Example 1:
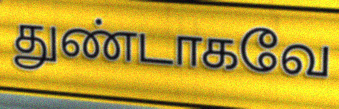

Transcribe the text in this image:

துண்டாகவே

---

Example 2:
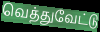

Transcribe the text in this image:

வெத்துவேட்டு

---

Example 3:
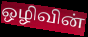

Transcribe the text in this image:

ஒழிவின்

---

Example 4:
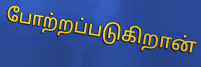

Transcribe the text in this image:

போற்றப்படுகிறான்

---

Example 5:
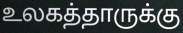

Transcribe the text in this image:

உலகத்தாருக்கு